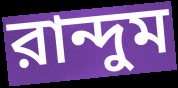
রান্দুম